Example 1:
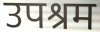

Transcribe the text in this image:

उपश्रम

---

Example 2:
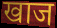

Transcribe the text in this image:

खाज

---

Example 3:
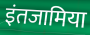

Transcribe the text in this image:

इंतजामिया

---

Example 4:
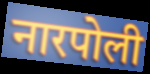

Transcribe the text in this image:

नारपोली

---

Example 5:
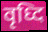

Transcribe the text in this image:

वृध्दि